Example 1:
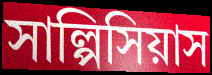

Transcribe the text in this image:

সাল্পিসিয়াস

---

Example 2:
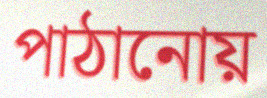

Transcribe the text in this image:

পাঠানোয়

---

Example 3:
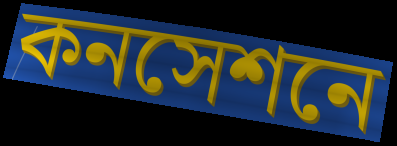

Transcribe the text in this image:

কনসেশনে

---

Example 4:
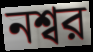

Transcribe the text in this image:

নশ্বর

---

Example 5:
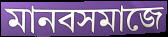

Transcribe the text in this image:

মানবসমাজে